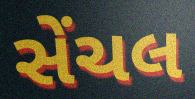
સેંચલ